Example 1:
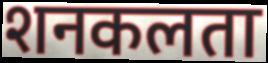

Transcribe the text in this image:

शनकलता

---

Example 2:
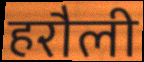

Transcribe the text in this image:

हरौली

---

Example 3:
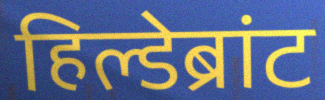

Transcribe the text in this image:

हिल्डेब्रांट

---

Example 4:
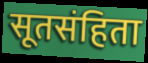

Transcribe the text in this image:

सूतसंहिता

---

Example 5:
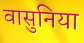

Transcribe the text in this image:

वासुनिया